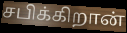
சபிக்கிறான்